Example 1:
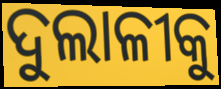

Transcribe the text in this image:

ଦୁଲାଳୀକୁ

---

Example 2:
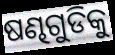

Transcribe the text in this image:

ଷଣ୍ଢଗୁଡିକୁ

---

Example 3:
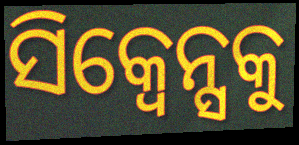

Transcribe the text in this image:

ସିକ୍ୱେନ୍ସକୁ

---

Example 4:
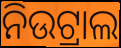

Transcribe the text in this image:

ନିଉଟ୍ରାଲ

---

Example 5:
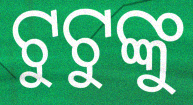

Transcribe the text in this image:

ଟୁଟୁଙ୍କୁ